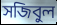
সজিবুল